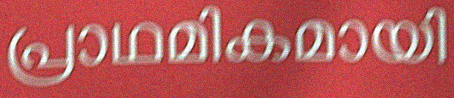
പ്രാഥമികമായി